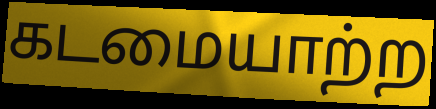
கடமையாற்ற